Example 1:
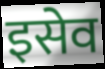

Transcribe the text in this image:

इसेव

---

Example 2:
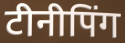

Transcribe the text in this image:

टीनीपिंग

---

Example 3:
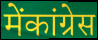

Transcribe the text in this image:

मेंकांग्रेस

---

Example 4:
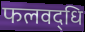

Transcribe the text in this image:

फलवद्धि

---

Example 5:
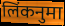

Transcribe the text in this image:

लिंकनुमा